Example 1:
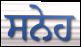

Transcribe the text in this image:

ਸਨੇਹ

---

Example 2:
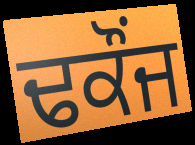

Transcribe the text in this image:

ਢਕੌਂਜ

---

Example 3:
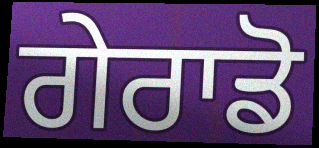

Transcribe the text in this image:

ਗੇਰਾਡੋ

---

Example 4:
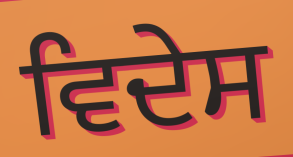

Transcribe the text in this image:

ਵਿਦੇਸ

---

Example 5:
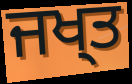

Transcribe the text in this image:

ਜਖ੍ਤ